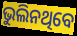
ଭୁଲିନଥିବେ